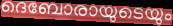
ദെബോരായുടെയും